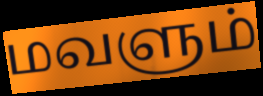
மவளும்